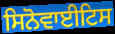
ਸਿਨੋਵਾਈਟਿਸ